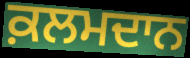
ਕ਼ਲਮਦਾਨ